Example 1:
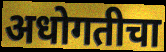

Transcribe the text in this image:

अधोगतीचा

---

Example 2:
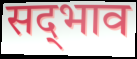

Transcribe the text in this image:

सद्‍भाव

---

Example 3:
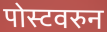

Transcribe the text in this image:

पोस्टवरुन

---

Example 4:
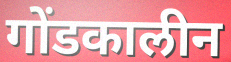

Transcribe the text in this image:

गोंडकालीन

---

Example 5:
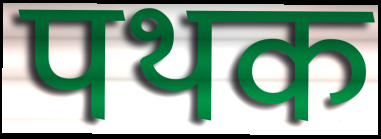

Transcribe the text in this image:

पथक